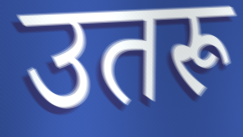
उतरू